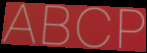
ABCP